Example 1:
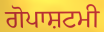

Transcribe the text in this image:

ਗੋਪਾਸ਼ਟਮੀ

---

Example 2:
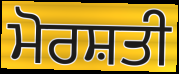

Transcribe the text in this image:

ਮੋਰਸ਼ਤੀ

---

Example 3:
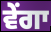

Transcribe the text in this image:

ਵੇਂਗਾ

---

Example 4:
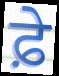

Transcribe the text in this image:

ਫ਼ੇ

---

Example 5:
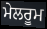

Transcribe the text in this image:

ਮੇਲਰੂਮ